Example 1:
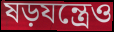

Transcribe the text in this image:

ষড়যন্ত্রেও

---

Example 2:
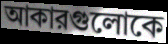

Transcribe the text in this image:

আকারগুলোকে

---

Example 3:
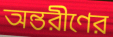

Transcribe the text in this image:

অন্তরীণের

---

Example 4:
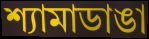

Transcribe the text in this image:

শ্যামাডাঙা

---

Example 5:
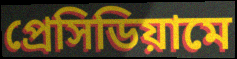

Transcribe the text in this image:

প্রেসিডিয়ামে